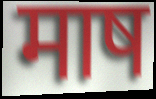
माष